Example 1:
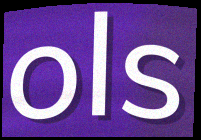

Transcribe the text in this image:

ols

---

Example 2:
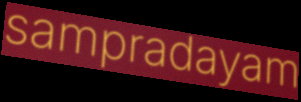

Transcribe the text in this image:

sampradayam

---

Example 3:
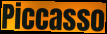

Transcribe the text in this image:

Piccasso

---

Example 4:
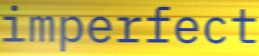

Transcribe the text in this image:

imperfect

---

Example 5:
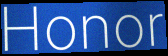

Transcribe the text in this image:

Honor